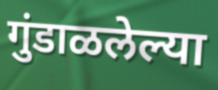
गुंडाळलेल्या